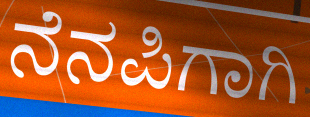
ನೆನಪಿಗಾಗಿ